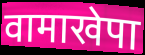
वामाखेपा